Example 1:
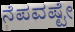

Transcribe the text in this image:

ನೆಪವಷ್ಟೇ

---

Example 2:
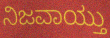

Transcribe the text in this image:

ನಿಜವಾಯ್ತು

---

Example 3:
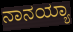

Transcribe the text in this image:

ನಾನಯ್ಯಾ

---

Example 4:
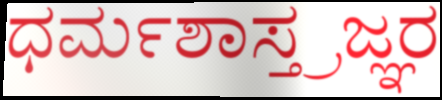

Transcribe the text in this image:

ಧರ್ಮಶಾಸ್ತ್ರಜ್ಞರ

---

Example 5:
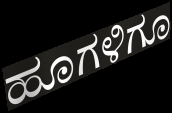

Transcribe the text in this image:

ಹೂಗಳಿಗೂ